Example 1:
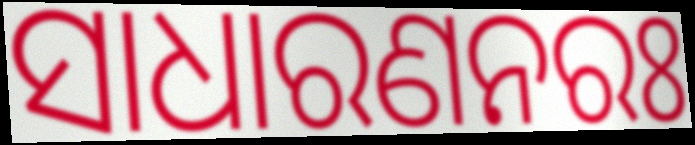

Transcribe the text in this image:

ସାଧାରଣନରଃ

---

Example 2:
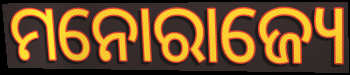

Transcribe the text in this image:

ମନୋରାଜ୍ୟେ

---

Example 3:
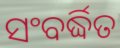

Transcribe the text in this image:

ସଂବର୍ଦ୍ଧିତ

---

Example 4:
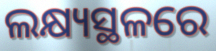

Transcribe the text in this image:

ଲକ୍ଷ୍ୟସ୍ଥଳରେ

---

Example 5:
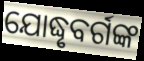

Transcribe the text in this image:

ଯୋଦ୍ଧୃବର୍ଗଙ୍କ